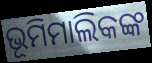
ଭୂମିମାଲିକଙ୍କ